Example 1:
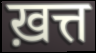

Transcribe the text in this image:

ख़त्त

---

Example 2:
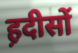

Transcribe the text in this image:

ह़दीसों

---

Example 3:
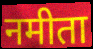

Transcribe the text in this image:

नमीता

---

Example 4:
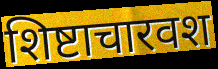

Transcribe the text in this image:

शिष्टाचारवश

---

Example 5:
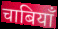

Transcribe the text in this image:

चाबियाँ